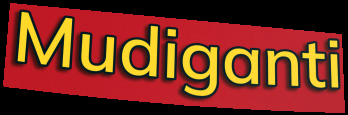
Mudiganti